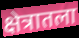
क्षेत्रातला